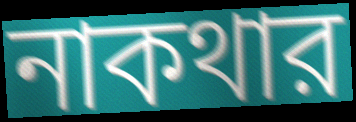
নাকথার